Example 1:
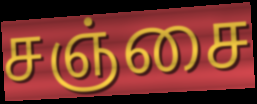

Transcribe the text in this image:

சஞ்சை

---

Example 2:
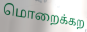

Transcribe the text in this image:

மொறைக்கற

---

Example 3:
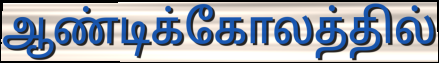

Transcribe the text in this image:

ஆண்டிக்கோலத்தில்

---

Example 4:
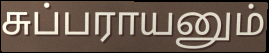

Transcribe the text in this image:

சுப்பராயனும்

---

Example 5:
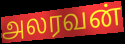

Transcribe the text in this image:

அலரவன்